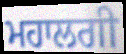
ਮਹਾਲਗੀ